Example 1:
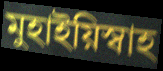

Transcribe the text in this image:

মুহাইয়িস্বাহ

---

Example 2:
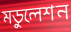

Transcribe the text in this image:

মডুলেশন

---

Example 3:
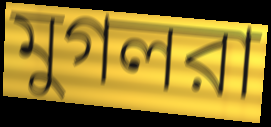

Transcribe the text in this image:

মুগলরা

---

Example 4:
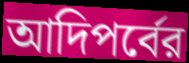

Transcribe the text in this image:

আদিপর্বের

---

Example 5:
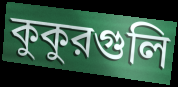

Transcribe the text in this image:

কুকুরগুলি